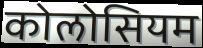
कोलोसियम